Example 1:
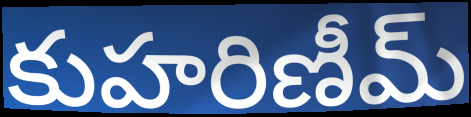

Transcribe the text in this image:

కుహరిణీమ్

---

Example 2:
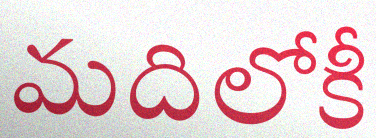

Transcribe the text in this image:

మదిలోకీ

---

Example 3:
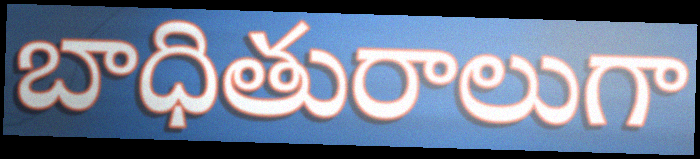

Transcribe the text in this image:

బాధితురాలుగా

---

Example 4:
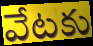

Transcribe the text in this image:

వేటకు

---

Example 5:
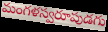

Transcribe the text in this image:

మంగళస్వరూపుడగు